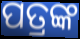
ପତ୍ରଙ୍କ